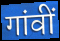
गांवीं